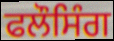
ਫਲੌਸਿੰਗ